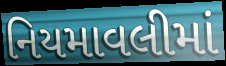
નિયમાવલીમાં